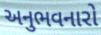
અનુભવનારો